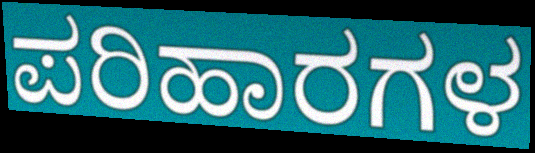
ಪರಿಹಾರಗಳ